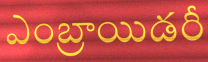
ఎంబ్రాయిడరీ